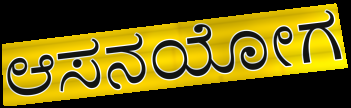
ಆಸನಯೋಗ